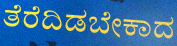
ತೆರೆದಿಡಬೇಕಾದ